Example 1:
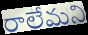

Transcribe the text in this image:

రాలేమని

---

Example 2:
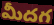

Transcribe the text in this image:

మీదగ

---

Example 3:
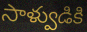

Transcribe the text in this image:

సాళ్వుడికి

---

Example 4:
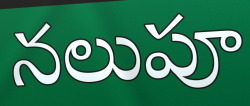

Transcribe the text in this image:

నలుపూ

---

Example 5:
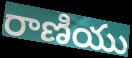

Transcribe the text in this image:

రాణియు